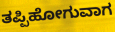
ತಪ್ಪಿಹೋಗುವಾಗ